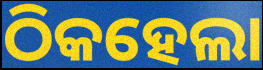
ଠିକହେଲା